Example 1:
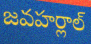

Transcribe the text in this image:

జవహర్లాల్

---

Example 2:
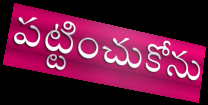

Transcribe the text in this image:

పట్టించుకోను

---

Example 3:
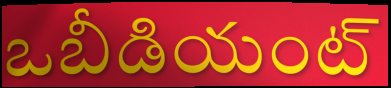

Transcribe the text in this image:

ఒబీడియంట్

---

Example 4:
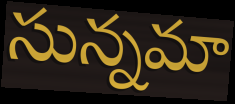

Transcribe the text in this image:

సున్నమా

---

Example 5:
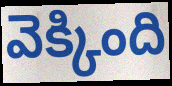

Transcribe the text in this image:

వెక్కింది